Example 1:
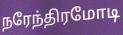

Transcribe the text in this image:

நரேந்திரமோடி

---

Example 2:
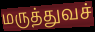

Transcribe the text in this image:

மருத்துவச்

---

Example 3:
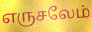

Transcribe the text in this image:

எருசலேம்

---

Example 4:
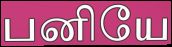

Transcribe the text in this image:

பனியே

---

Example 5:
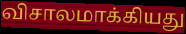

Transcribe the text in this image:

விசாலமாக்கியது